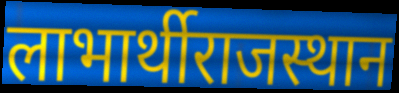
लाभार्थीराजस्थान